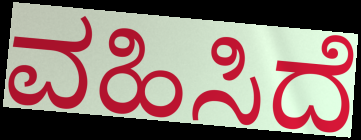
ವಹಿಸಿದೆ